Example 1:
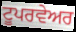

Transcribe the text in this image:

ਟੂਪਰਵੇਅਰ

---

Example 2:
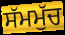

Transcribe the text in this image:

ਸੱਮਮੁੱਚ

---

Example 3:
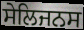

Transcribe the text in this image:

ਸੇਲਿਜਨਸ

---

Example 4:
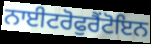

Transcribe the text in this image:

ਨਾਈਟਰੋਫੁਰੈਂਟੋਇਨ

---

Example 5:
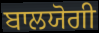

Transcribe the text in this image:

ਬਾਲਯੋਗੀ